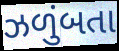
ઝળુંબતા